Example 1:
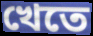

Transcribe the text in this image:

খেতে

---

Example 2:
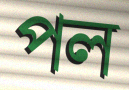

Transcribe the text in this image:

পল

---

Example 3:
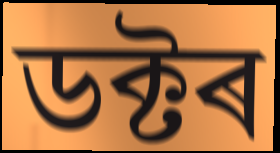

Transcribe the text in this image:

ডক্টৰ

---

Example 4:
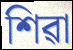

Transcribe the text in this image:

শিৱা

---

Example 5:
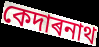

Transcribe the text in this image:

কেদাৰনাথ